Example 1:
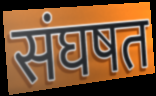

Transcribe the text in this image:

संघषत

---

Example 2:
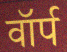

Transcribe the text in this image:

वॉर्प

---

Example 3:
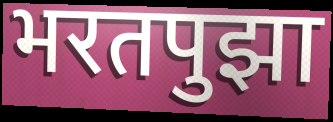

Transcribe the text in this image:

भरतपुझा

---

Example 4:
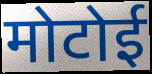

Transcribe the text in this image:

मोटोई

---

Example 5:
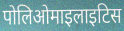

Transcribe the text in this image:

पोलिओमाइलाइटिस